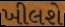
ખીલશે